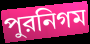
পুরনিগম